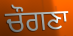
ਚੌਗਣਾ